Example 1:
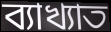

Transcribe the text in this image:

ব্যাখ্যাত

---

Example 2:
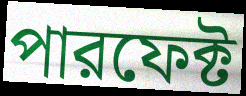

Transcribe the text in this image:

পারফেক্ট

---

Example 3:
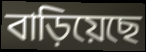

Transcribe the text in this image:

বাড়িয়েছে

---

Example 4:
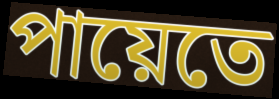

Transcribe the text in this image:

পায়েতে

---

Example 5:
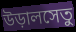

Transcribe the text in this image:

উড়ালসেতু